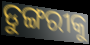
ଡୁଙ୍ଗରୀକୁ